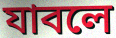
যাবলে